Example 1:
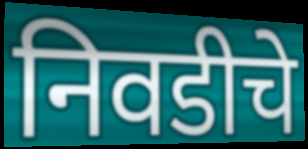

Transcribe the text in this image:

निवडीचे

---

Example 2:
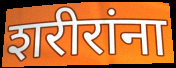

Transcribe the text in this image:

शरीरांना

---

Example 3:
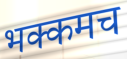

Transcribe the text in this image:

भक्कमच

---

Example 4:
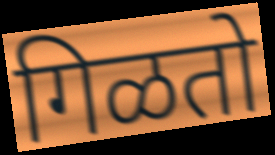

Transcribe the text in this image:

गिळतो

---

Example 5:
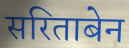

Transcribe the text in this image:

सरिताबेन